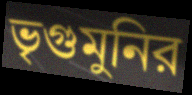
ভৃগুমুনির